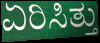
ಏರಿಸಿತ್ತು